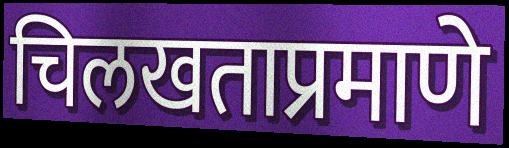
चिलखताप्रमाणे